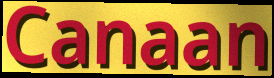
Canaan